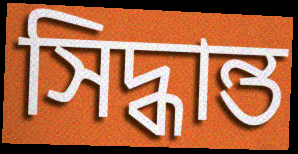
সিদ্ধান্ত